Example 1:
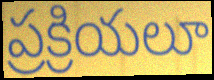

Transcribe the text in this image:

ప్రక్రియలూ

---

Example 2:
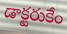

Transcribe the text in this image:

డాక్టరుకేం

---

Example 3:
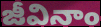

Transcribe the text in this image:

జీవినాం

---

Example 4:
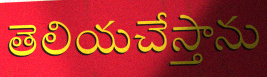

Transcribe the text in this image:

తెలియచేస్తాను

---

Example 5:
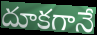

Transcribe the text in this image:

దూకగానే